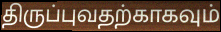
திருப்புவதற்காகவும்